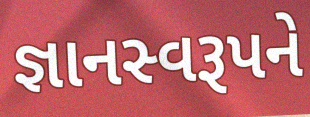
જ્ઞાનસ્વરૂપને